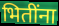
भितींना